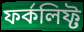
ফর্কলিফ্ট